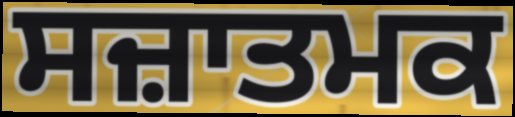
ਸਜ਼ਾਤਮਕ